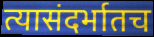
त्यासंदर्भातच